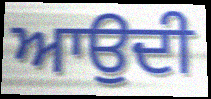
ਆਉਦੀ